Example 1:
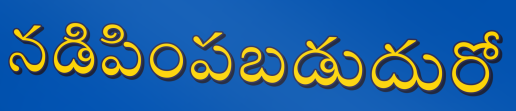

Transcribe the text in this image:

నడిపింపబడుదురో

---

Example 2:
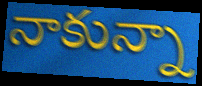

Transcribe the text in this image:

నాకున్నా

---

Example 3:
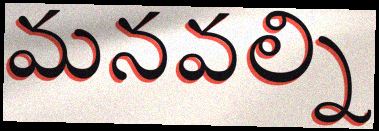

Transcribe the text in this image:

మనవల్ని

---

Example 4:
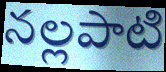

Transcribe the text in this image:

నల్లపాటి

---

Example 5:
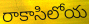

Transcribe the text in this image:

రాకాసిలోయ